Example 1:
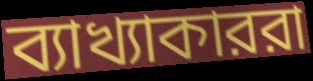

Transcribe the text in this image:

ব্যাখ্যাকাররা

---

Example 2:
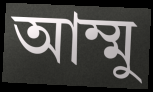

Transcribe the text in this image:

আম্মু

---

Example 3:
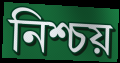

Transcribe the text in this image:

নিশ্চয়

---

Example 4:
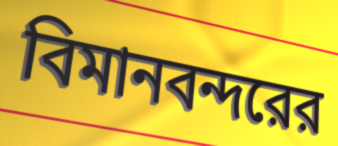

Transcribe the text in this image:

বিমানবন্দরের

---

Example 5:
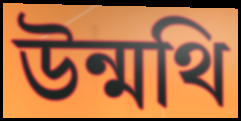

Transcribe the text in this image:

উন্মথি